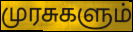
முரசுகளும்